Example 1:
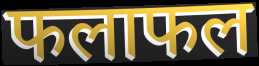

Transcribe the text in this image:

फलाफल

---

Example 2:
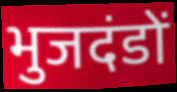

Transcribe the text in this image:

भुजदंडों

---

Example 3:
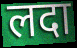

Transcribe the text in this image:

लदा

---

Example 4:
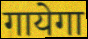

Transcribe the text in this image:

गायेगा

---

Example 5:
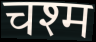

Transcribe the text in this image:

चश्म